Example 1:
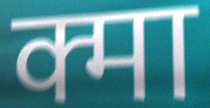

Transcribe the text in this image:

क्मा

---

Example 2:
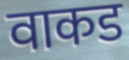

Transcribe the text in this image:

वाकड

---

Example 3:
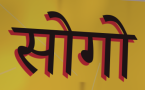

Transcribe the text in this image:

सोगो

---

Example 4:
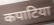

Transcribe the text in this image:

कपाटिया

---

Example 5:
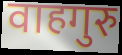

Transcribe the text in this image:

वाहगुरु